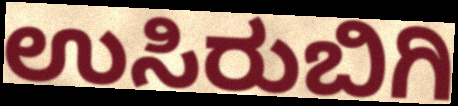
ಉಸಿರುಬಿಗಿ